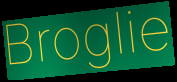
Broglie